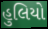
હુલિયો